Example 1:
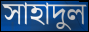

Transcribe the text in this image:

সাহাদুল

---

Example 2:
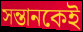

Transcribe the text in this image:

সন্তানকেই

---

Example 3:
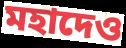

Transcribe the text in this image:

মহাদেও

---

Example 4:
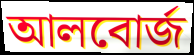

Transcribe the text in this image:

আলবোর্জ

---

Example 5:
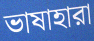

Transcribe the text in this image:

ভাষাহারা